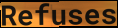
Refuses